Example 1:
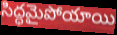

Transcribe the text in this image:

సిద్ధమైపోయాయి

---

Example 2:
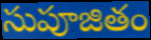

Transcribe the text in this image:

సుపూజితం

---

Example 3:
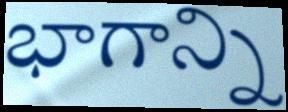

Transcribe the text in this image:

భాగాన్ని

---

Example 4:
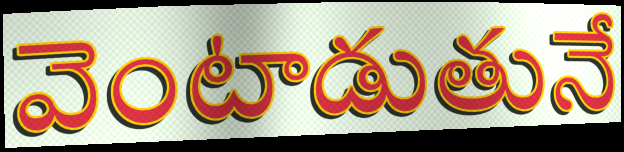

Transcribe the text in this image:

వెంటాడుతునే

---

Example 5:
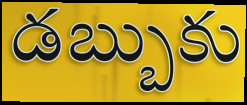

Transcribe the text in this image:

డబ్బుకు